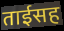
ताईसह